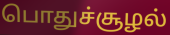
பொதுச்சூழல்